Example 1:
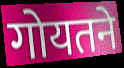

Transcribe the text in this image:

गोयतने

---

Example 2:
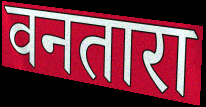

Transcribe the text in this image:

वनतारा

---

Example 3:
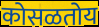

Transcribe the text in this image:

कोसळतोय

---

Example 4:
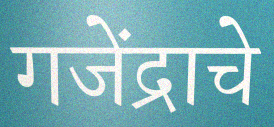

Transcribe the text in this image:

गजेंद्राचे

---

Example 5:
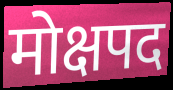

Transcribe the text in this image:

मोक्षपद